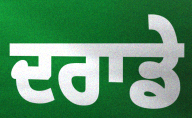
ਦਰਾਡੇ